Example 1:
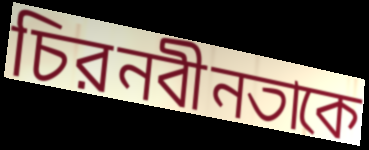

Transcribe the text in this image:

চিরনবীনতাকে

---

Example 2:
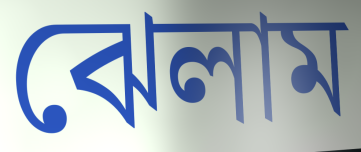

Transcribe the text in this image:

ঝেলাম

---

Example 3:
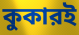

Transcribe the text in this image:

কুকারই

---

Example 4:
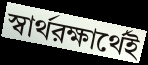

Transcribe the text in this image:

স্বার্থরক্ষার্থেই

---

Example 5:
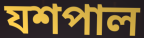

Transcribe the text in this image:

যশপাল